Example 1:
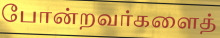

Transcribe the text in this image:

போன்றவர்களைத்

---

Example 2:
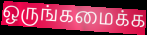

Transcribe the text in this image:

ஒருங்கமைக்க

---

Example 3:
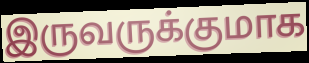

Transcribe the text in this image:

இருவருக்குமாக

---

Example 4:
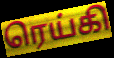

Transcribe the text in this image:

ரெய்கி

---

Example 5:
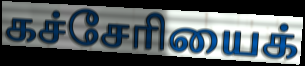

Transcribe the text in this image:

கச்சேரியைக்